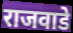
राजवाडे